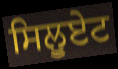
ਸਿਲੂਏਟ